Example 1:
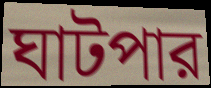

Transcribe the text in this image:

ঘাটপার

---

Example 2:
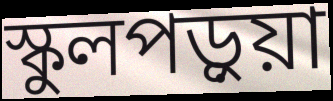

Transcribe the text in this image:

স্কুলপড়ুয়া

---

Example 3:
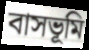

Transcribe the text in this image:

বাসভূমি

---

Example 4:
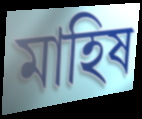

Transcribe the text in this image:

মাহিষ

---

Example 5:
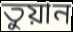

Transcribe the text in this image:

তুয়ান